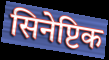
सिनेप्टिक